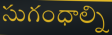
సుగంధాల్ని